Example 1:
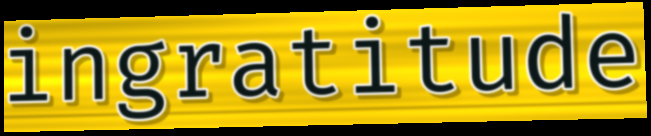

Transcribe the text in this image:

ingratitude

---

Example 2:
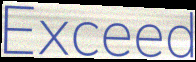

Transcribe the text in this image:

Exceed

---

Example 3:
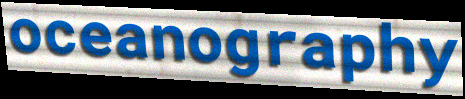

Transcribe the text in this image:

oceanography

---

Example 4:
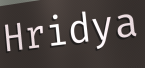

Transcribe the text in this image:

Hridya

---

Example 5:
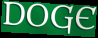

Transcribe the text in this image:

DOGE